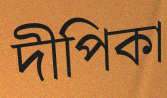
দীপিকা